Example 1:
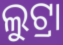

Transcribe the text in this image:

ଲୁଟ୍ରା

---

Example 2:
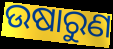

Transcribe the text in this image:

ଉଷାରୁଣ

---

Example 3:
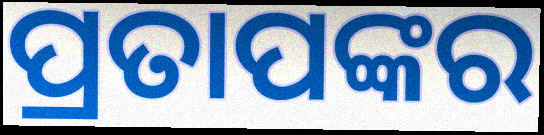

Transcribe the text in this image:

ପ୍ରତାପଙ୍କର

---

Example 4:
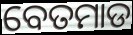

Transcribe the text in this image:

ବେତମାଡ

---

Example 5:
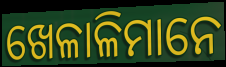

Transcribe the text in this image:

ଖେଳାଳିମାନେ